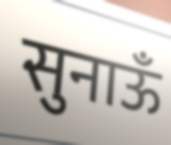
सुनाऊँ